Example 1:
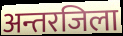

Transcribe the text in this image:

अन्तरजिला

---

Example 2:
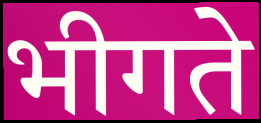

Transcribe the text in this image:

भीगते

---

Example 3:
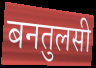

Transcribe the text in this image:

बनतुलसी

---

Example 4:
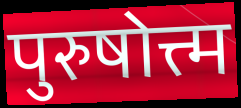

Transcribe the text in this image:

पुरुषोत्त्म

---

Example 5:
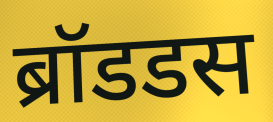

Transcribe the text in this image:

ब्रॉडडस